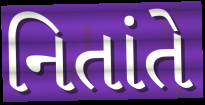
નિતાંતે